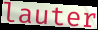
lauter